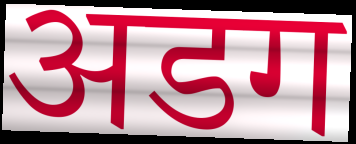
अडग